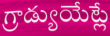
గ్రాడ్యుయేట్లే